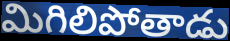
మిగిలిపోతాడు